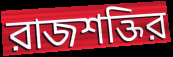
রাজশক্তির